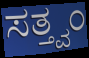
ಸತ್ತ್ವಂ